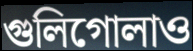
গুলিগোলাও